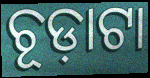
ଚୂଡ଼ାଟା